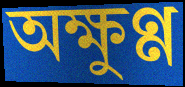
অক্ষুণ্ণ